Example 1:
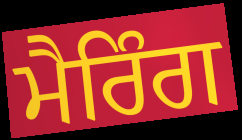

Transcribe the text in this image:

ਮੈਰਿੰਗ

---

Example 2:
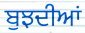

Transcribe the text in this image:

ਬੁਝਦੀਆਂ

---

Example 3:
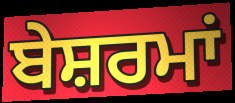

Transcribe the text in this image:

ਬੇਸ਼ਰਮਾਂ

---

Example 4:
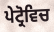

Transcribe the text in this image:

ਪੇਟ੍ਰੋਵਿਚ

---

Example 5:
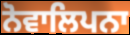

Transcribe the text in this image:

ਨੋਵਾਲਿਪਨਾ